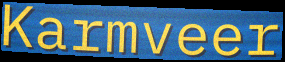
Karmveer